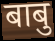
बाबु